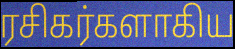
ரசிகர்களாகிய